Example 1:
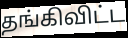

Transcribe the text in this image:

தங்கிவிட்ட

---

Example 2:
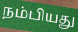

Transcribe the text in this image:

நம்பியது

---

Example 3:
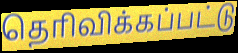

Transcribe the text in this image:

தெரிவிக்கப்பட்டு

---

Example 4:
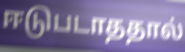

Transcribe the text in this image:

ஈடுபடாததால்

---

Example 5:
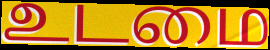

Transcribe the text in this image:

உடமை